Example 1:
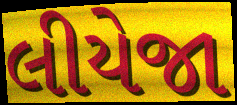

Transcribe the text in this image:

લીયેજા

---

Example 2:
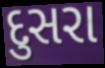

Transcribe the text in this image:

દુસરા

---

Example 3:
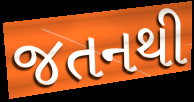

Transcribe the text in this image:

જતનથી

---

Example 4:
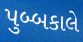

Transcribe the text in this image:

પુબ્બકાલે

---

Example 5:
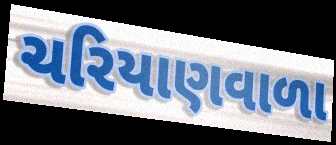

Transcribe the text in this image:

ચરિયાણવાળા